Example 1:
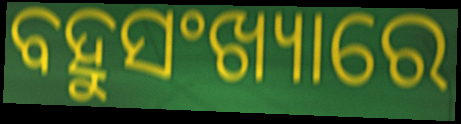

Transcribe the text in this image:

ବହୁସଂଖ୍ୟାରେ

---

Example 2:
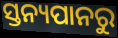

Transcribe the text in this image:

ସ୍ତନ୍ୟପାନରୁ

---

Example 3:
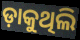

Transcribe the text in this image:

ଡ଼ାକୁଥିଲି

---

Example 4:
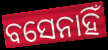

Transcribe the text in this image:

ବସେନାହିଁ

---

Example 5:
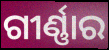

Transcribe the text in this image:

ଗୀର୍ଣ୍ଣାର